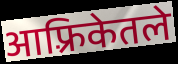
आफ़्रिकेतले